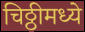
चिठ्ठीमध्ये